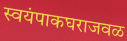
स्वयंपाकघराजवळ